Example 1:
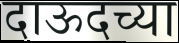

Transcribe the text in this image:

दाऊदच्या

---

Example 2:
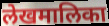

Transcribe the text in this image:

लेखमालिका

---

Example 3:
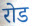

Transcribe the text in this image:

रोड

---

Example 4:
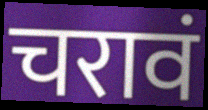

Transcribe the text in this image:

चरावं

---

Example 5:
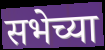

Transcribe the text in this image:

सभेच्या